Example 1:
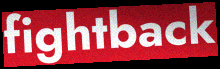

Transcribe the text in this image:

fightback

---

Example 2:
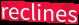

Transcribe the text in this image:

reclines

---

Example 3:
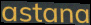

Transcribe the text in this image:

astana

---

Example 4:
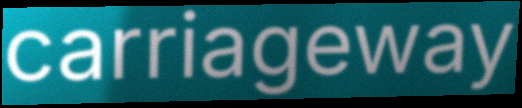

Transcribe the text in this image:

carriageway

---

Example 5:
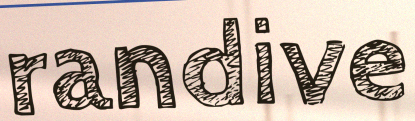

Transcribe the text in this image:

randive